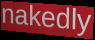
nakedly